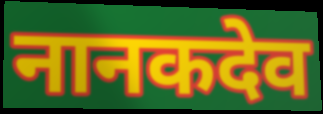
नानकदेव